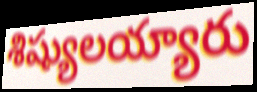
శిష్యులయ్యారు